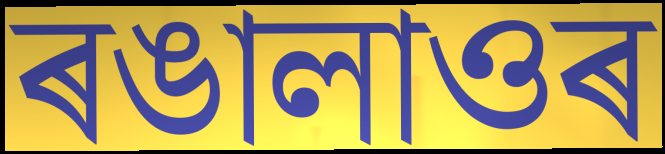
ৰঙালাওৰ